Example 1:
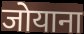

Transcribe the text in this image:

जोयाना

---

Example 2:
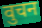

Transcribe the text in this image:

वुचन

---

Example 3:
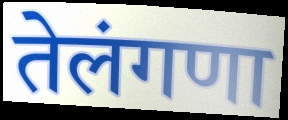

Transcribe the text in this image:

तेलंगणा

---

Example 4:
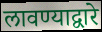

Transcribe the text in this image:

लावण्याद्वारे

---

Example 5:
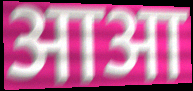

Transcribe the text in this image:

आआ